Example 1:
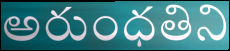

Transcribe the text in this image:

అరుంధతిని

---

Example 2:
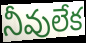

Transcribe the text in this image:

నీవులేక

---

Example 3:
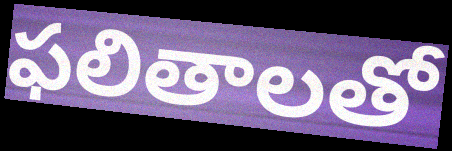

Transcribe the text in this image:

ఫలితాలతో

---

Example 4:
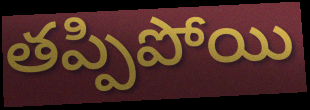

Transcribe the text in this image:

తప్పిపోయి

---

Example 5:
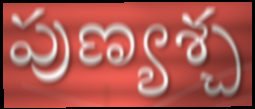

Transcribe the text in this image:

పుణ్యశ్చ